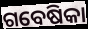
ଗବେଷିକା